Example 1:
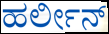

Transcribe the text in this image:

ಹರ್ಲೀನ್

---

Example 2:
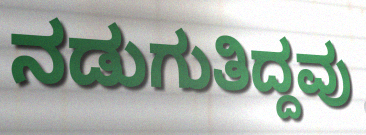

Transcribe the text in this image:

ನಡುಗುತಿದ್ದವು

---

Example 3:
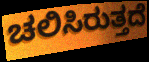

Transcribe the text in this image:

ಚಲಿಸಿರುತ್ತದೆ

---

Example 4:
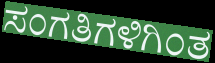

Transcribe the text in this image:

ಸಂಗತಿಗಳಿಗಿಂತ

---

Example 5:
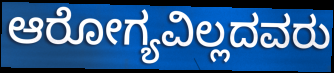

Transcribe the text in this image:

ಆರೋಗ್ಯವಿಲ್ಲದವರು